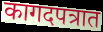
कागदपत्रात